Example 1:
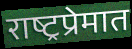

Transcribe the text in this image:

राष्ट्रप्रेमात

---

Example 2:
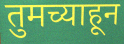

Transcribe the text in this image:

तुमच्याहून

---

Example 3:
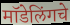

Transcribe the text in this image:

मॉडेलिंगचे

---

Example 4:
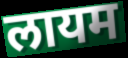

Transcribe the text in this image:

लायम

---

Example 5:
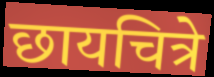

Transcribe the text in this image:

छायचित्रे